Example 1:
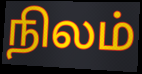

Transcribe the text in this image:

நிலம்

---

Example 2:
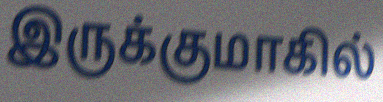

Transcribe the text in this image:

இருக்குமாகில்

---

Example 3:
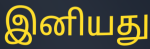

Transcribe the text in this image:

இனியது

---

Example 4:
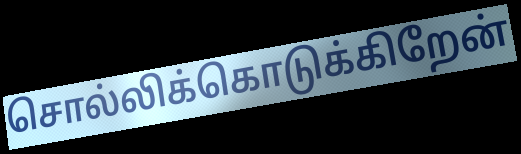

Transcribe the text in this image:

சொல்லிக்கொடுக்கிறேன்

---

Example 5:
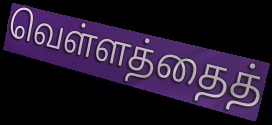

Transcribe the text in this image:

வெள்ளத்தைத்